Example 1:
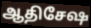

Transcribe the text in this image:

ஆதிசேஷ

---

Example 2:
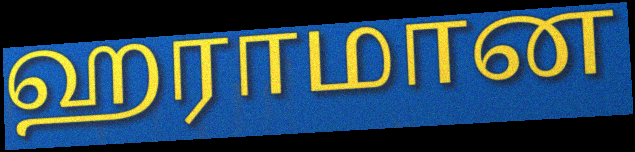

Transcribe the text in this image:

ஹராமான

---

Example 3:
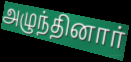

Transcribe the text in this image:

அழுந்தினார்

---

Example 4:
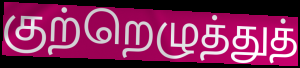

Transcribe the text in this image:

குற்றெழுத்துத்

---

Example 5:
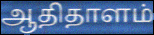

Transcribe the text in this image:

ஆதிதாளம்